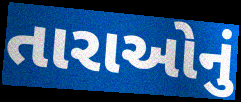
તારાઓનું